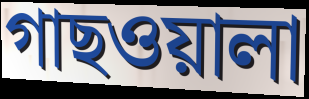
গাছওয়ালা